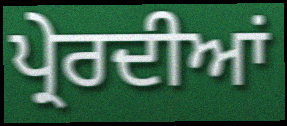
ਪ੍ਰੇਰਦੀਆਂ